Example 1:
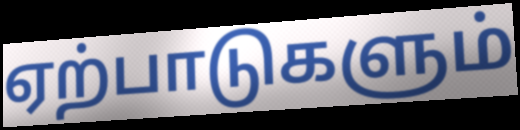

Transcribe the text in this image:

ஏற்பாடுகளும்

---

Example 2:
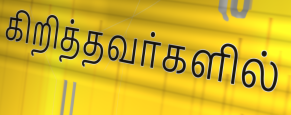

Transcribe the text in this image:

கிறித்தவர்களில்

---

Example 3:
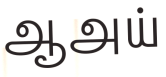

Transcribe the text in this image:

ஆஅய்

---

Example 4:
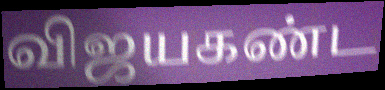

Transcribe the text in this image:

விஜயகண்ட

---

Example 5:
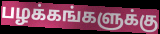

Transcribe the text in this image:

பழக்கங்களுக்கு